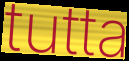
tutta